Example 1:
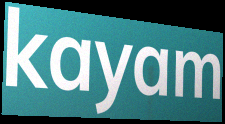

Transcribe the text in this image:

kayam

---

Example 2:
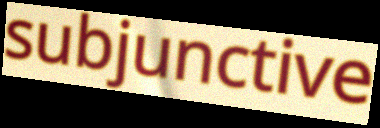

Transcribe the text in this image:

subjunctive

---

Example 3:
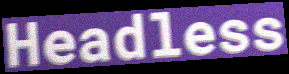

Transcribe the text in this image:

Headless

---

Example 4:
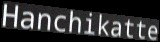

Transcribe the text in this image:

Hanchikatte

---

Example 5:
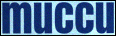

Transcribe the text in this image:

muccu